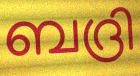
ബദ്രി